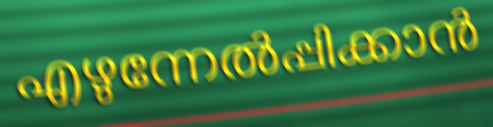
എഴുന്നേൽപ്പിക്കാൻ